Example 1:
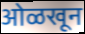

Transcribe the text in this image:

ओळखून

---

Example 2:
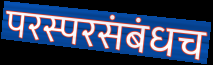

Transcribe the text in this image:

परस्परसंबंधच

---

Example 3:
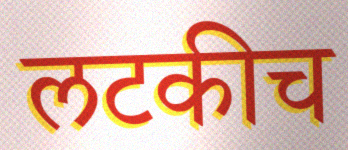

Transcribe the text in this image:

लटकीच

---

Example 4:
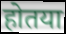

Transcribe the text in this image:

होतया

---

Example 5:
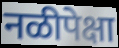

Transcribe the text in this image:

नळीपेक्षा